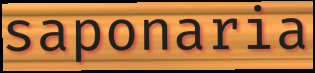
saponaria